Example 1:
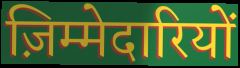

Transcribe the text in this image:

ज़िम्मेदारियों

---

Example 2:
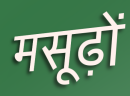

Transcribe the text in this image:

मसूढ़ों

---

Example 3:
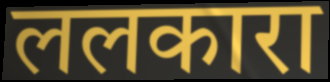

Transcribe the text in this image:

ललकारा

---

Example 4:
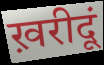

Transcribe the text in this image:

ख़रीदूं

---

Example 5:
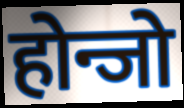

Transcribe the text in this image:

होन्जो